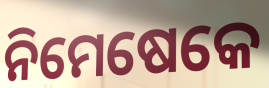
ନିମେଷେକେ